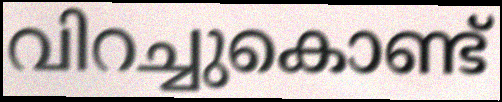
വിറച്ചുകൊണ്ട്